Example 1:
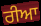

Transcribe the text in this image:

ਰੀਆ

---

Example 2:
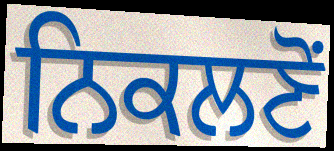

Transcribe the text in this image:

ਨਿਕਲਣੋਂ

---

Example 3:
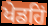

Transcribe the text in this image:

ਖੇਡਹਿਂ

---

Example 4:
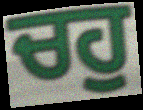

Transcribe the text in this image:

ਚਹੁ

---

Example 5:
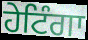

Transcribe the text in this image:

ਹੇਟਿੰਗਾ